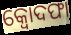
କ୍ବୋଦଫା